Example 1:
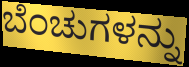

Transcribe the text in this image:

ಬೆಂಚುಗಳನ್ನು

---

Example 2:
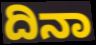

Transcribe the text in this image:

ದಿನಾ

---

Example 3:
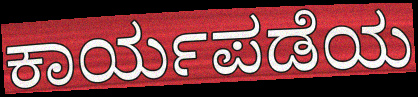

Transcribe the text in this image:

ಕಾರ್ಯಪಡೆಯ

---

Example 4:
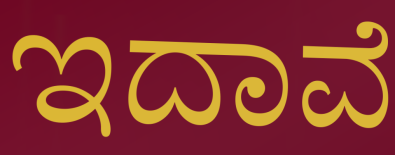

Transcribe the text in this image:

ಇದಾವೆ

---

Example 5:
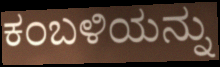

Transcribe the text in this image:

ಕಂಬಳಿಯನ್ನು